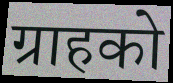
ग्राहको